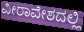
ವೀರಾವೇಶದಲ್ಲಿ